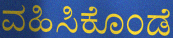
ವಹಿಸಿಕೊಂಡೆ